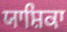
ਯਾਸ਼ਿਕਾ